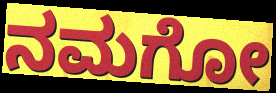
ನಮಗೋ